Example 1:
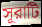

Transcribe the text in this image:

সূরাটি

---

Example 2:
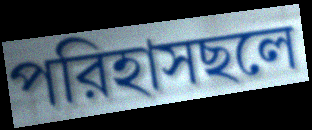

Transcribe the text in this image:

পরিহাসছলে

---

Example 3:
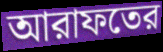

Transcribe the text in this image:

আরাফতের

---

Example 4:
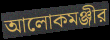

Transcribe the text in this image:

আলোকমঞ্জীর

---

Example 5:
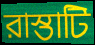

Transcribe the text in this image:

রাস্তাটি